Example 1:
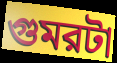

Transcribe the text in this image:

গুমরটা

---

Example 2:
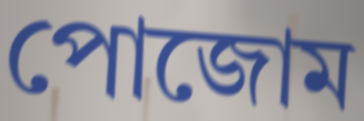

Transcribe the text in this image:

পোজোম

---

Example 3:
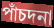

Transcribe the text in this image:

পাঁচদনা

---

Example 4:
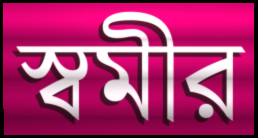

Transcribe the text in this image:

স্বমীর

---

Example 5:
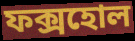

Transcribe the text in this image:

ফক্সহোল